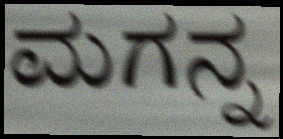
ಮಗನ್ನ